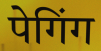
पेगिंग